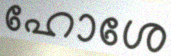
ഹോശേ